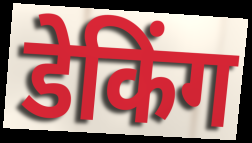
डेकिंग